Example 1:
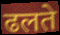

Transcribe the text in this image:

ढलते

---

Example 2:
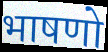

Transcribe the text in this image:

भाषणो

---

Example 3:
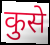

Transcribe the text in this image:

कुसे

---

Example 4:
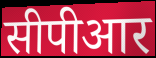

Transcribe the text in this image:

सीपीआर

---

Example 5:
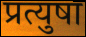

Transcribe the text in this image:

प्रत्युषा